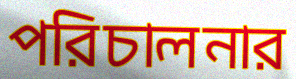
পরিচালনার